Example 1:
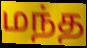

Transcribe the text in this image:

மந்த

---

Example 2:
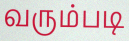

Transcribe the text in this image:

வரும்படி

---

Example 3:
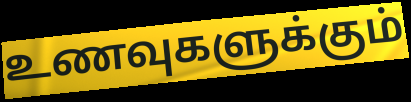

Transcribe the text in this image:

உணவுகளுக்கும்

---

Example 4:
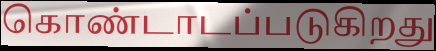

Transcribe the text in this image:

கொண்டாடப்படுகிறது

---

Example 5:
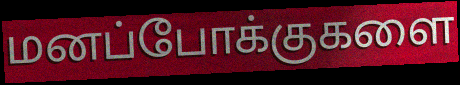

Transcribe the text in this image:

மனப்போக்குகளை